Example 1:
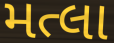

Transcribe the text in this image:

મત્લા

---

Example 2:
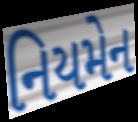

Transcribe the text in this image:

નિયમેન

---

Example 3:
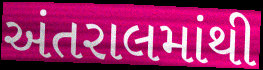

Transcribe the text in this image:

અંતરાલમાંથી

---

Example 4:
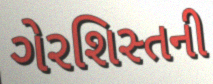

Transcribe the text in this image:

ગેરશિસ્તની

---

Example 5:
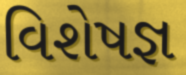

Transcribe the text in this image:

વિશેષજ્ઞ